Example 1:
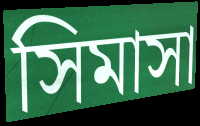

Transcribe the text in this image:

সিমাসা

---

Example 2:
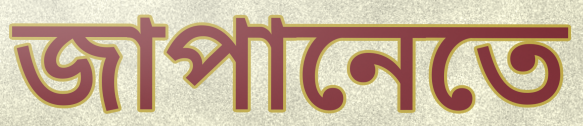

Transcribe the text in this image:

জাপানেতে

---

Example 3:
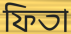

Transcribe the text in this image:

ফিতা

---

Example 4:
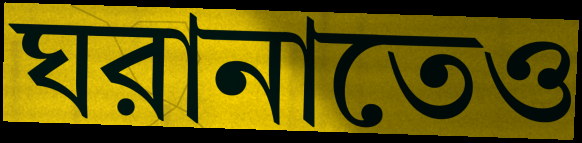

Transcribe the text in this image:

ঘরানাতেও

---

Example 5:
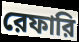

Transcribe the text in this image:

রেফারি